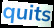
quits